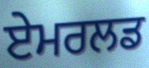
ਏਮਰਲਡ